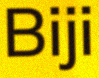
Biji